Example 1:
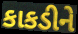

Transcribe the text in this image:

કાકડીને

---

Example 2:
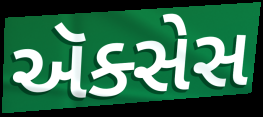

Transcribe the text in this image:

ઍક્સેસ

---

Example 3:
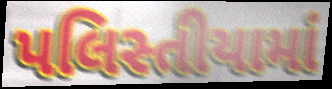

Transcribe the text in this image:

પલિસ્તીયામાં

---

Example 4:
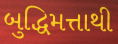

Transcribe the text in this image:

બુદ્ધિમત્તાથી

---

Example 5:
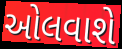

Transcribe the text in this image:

ઓલવાશે